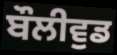
ਬੌਲੀਵੁਡ